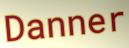
Danner